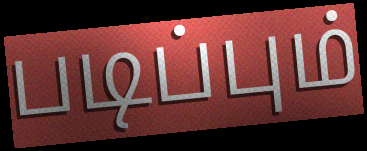
படிப்பும்